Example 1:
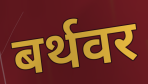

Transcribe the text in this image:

बर्थवर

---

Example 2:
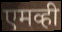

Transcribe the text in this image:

एमव्ही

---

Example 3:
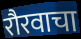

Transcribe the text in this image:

रौरवाचा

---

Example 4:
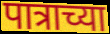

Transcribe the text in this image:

पात्राच्‍या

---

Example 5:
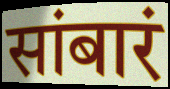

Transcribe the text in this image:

सांबारं